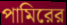
পামিরের